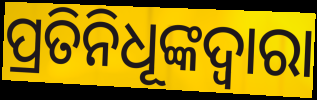
ପ୍ରତିନିଧୂଙ୍କଦ୍ଵାରା